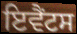
ਇਵੈਂਟਸ